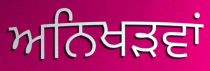
ਅਨਿਖੜਵਾਂ